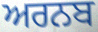
ਅਰਨਬ